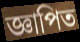
জ্ঞাপিত